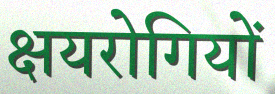
क्षयरोगियों